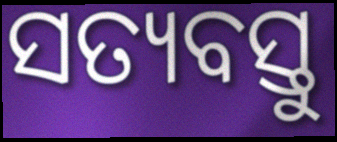
ସତ୍ୟବସ୍ତୁ